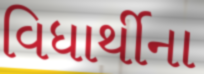
વિધાર્થીના